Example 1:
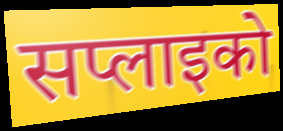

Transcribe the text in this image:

सप्लाइको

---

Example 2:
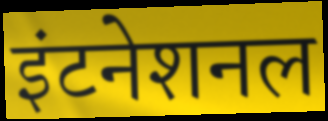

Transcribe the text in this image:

इंटनेशनल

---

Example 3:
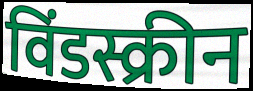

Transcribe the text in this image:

विंडस्क्रीन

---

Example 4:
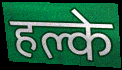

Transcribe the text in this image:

हल्‍के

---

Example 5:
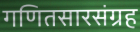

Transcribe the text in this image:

गणितसारसंग्रह